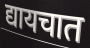
द्यायचात